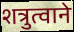
शत्रुत्वाने